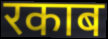
रकाब